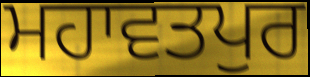
ਮਹਾਵਤਪੁਰ